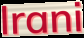
Irani